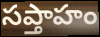
సప్తాహం